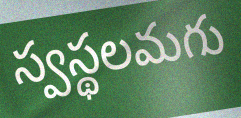
స్వస్థలమగు